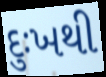
દુઃખથી